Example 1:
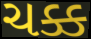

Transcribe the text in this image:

ચક્ક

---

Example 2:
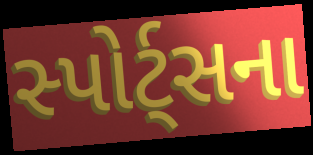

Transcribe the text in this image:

સ્પોર્ટ્સના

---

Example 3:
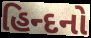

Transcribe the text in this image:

હિન્દનો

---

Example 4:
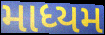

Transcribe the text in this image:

માધ્યમ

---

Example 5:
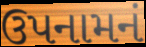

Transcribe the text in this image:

ઉપનામનં